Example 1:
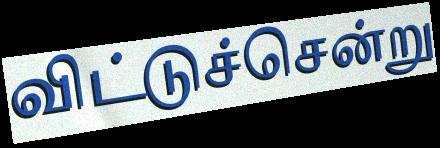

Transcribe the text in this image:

விட்டுச்சென்று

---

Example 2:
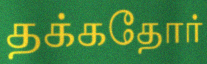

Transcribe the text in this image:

தக்கதோர்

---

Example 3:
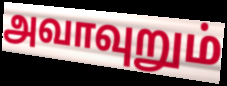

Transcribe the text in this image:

அவாவுறும்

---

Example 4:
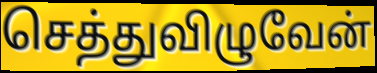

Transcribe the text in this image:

செத்துவிழுவேன்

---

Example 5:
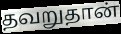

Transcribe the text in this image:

தவறுதான்